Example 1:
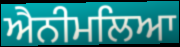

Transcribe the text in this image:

ਐਨੀਮਲਿਆ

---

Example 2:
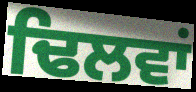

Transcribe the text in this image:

ਢਿਲਵਾਂ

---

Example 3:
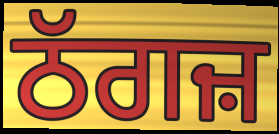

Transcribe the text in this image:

ਠੱਗਜ਼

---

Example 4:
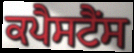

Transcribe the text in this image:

ਕਪੈਸਟੈਂਸ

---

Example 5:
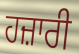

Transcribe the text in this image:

ਹਜ਼ਾਰੀ